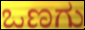
ಒಣಗು